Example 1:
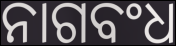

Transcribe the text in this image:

ନାଗବଂଧ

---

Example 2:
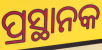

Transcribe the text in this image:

ପ୍ରସ୍ଥାନକ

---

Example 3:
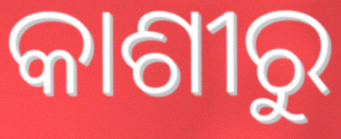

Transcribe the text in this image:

କାଶୀରୁ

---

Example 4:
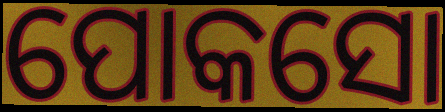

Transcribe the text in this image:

ପୋକସୋ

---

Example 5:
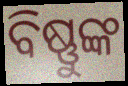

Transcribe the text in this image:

ବିଷ୍ଣୁଙ୍କ